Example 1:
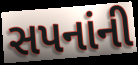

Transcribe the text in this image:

સપનાંની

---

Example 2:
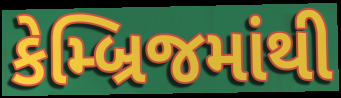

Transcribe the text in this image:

કેમ્બ્રિજમાંથી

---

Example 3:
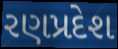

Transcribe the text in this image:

રણપ્રદેશ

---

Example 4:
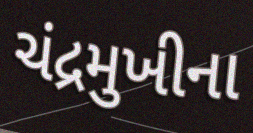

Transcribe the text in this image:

ચંદ્રમુખીના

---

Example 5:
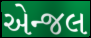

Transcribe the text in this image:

એન્જલ